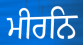
ਮੀਰਨਿ